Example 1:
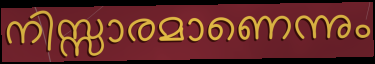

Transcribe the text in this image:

നിസ്സാരമാണെന്നും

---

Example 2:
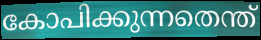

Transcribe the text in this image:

കോപിക്കുന്നതെന്ത്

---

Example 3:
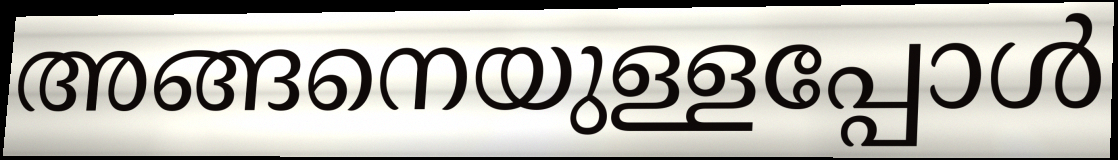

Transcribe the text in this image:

അങ്ങനെയുള്ളപ്പോൾ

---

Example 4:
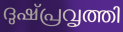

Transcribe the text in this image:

ദുഷ്പ്രവൃത്തി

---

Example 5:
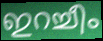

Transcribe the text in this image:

ഇറച്ചീം